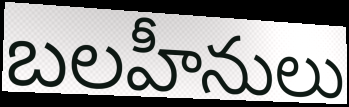
బలహీనులు